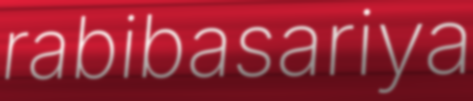
rabibasariya